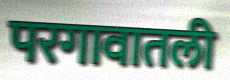
परगावातली